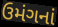
ઉમંગનાં